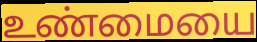
உண்மையை